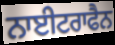
ਨਾਈਟਰਾਫੈਨ